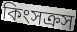
কিংসক্রস